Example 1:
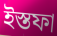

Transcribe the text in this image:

ইস্তফা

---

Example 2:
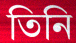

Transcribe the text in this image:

তিনি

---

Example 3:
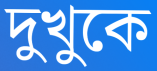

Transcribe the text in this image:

দুখুকে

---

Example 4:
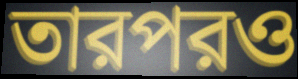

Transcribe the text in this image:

তারপরও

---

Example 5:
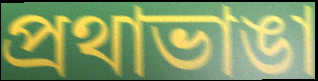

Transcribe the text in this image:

প্রথাভাঙা